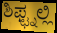
ಶಿಫ್ಟ್ನಲ್ಲಿ